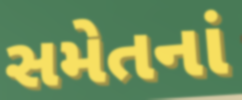
સમેતનાં